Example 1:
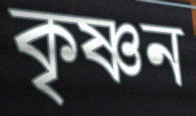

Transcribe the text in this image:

কৃষ্ণন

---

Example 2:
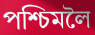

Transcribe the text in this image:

পশ্চিমলৈ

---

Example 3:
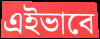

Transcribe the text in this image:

এইভাবে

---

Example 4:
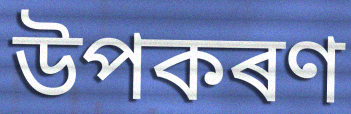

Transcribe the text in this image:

উপকৰণ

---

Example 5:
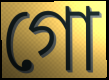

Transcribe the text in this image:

গো